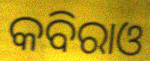
କବିରାଓ